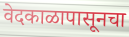
वेदकाळापासूनचा